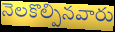
నెలకొల్పినవారు